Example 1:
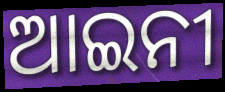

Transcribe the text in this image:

ଆଇନୀ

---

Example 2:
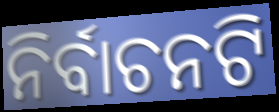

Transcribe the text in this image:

ନିର୍ବାଚନଟି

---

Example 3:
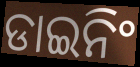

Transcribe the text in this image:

ଡାଇନିଂ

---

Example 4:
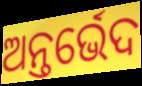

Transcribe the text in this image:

ଅନ୍ତର୍ଭେଦ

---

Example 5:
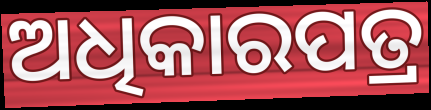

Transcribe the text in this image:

ଅଧିକାରପତ୍ର